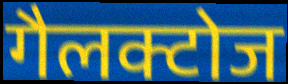
गैलक्टोज